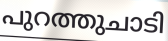
പുറത്തുചാടി